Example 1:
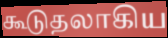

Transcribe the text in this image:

கூடுதலாகிய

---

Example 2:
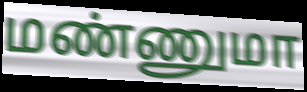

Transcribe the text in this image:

மண்ணுமா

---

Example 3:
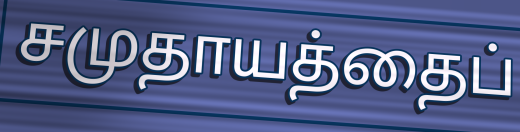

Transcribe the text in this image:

சமுதாயத்தைப்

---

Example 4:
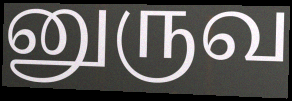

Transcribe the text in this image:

னுருவ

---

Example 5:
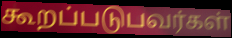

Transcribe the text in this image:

கூறப்படுபவர்கள்